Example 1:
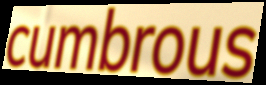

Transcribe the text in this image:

cumbrous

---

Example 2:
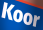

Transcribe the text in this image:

Koor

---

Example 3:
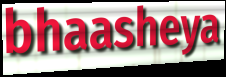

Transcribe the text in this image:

bhaasheya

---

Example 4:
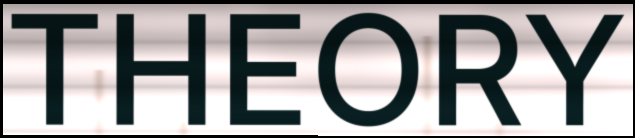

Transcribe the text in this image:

THEORY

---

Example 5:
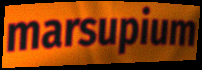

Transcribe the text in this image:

marsupium